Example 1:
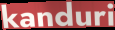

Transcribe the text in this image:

kanduri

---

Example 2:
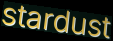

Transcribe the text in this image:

stardust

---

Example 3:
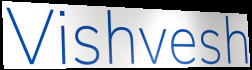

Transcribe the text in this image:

Vishvesh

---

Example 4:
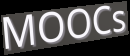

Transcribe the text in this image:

MOOCs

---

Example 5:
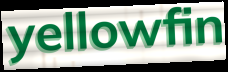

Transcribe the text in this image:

yellowfin